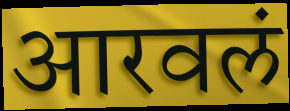
आरवलं